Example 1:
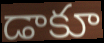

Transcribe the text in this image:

డాకూ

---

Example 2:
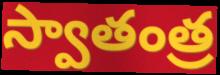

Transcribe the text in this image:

స్వాతంత్ర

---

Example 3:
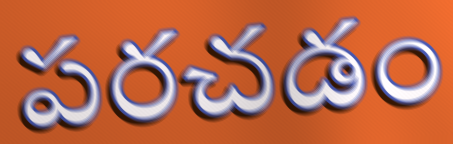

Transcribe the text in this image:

పరచడం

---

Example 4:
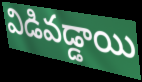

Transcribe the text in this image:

విడివడ్డాయి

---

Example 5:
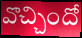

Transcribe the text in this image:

వొచ్చిందో